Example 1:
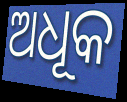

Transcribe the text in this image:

ଅଧୂକ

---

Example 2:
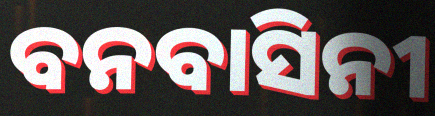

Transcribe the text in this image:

ବନବାସିନୀ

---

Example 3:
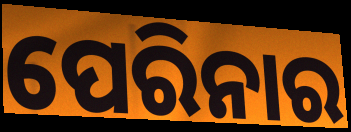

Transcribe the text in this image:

ପେରିନାର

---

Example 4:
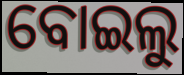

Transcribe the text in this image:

ବୋଇଲୁ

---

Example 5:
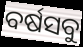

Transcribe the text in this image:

ବର୍ଷସବୁ